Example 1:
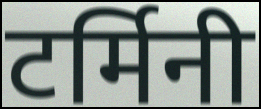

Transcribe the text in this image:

टर्मिनी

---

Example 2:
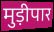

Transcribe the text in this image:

मुड़ीपार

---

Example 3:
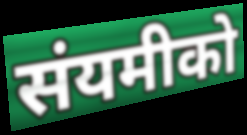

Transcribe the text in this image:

संयमीको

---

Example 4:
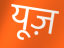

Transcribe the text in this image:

यूज़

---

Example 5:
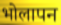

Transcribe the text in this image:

भोलापन